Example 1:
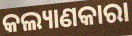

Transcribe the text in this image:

କଲ୍ୟାଣକାରା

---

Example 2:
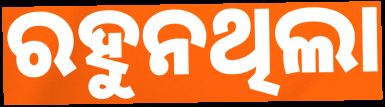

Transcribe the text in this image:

ରହୁନଥିଲା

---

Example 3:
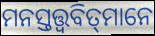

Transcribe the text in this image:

ମନସ୍ତତ୍ତ୍ୱବିତ୍‌ମାନେ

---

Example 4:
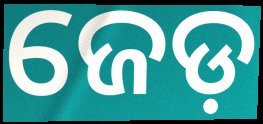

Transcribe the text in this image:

ଜେଡ଼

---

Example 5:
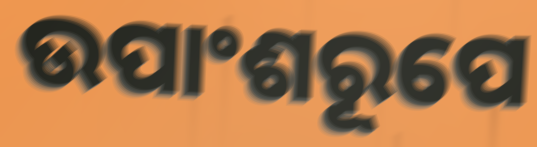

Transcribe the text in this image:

ଉପାଂଶରୂପେ